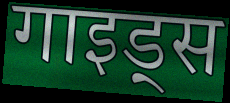
गाइड्स